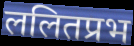
ललितप्रभ